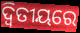
ଦ୍ୱିତୀୟରେ